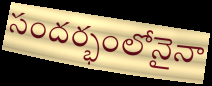
సందర్భంలోనైనా